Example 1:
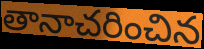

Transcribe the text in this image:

తానాచరించిన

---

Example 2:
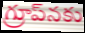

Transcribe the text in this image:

గ్రూప్‌నకు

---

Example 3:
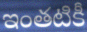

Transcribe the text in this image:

ఇంతటికీ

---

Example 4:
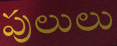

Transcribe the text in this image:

పులులు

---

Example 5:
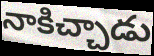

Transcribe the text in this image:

నాకిచ్చాడు